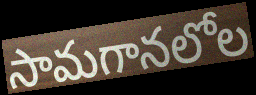
సామగానలోల